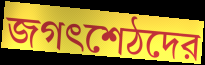
জগৎশেঠদের